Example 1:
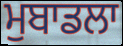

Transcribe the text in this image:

ਮੁਬਾਡਲਾ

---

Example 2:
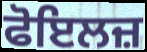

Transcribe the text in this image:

ਫੋਇਲਜ਼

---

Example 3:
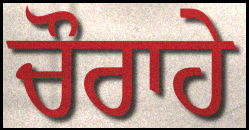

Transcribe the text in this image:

ਚੌਰਾਹੇ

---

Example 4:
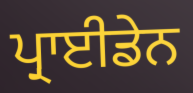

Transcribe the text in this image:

ਪ੍ਰਾਈਡੇਨ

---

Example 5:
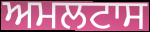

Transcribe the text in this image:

ਅਮਲਟਾਸ